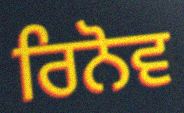
ਰਿਨੋਵ